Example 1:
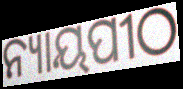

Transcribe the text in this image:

ନ୍ୟାୟପୀଠ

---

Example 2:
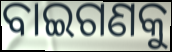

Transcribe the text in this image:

ବାଇଗଣକୁ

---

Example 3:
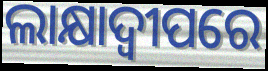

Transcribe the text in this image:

ଲାକ୍ଷାଦ୍ୱୀପରେ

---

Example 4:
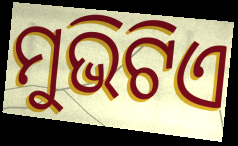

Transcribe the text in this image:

ମୁଭିଟିଏ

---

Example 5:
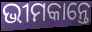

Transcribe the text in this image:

ଭୀମକାନ୍ତେ